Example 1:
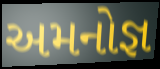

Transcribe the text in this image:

અમનોજ્ઞ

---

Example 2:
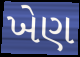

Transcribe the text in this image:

ખેણ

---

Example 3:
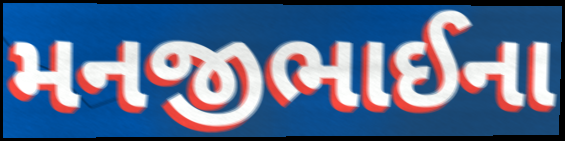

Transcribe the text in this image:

મનજીભાઈના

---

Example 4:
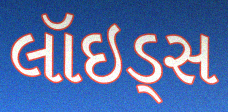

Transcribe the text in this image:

લૉઇડ્સ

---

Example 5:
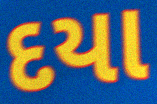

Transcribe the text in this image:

દયા